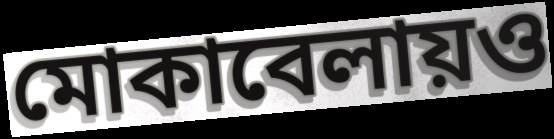
মোকাবেলায়ও